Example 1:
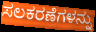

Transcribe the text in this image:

ಸಲಕರಣೆಗಳನ್ನು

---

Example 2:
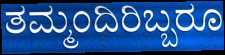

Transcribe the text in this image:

ತಮ್ಮಂದಿರಿಬ್ಬರೂ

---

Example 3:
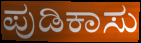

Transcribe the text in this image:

ಪುಡಿಕಾಸು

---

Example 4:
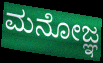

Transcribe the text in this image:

ಮನೋಜ್ಞ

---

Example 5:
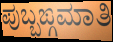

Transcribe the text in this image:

ಪುಬ್ಬಙ್ಗಮಾತಿ